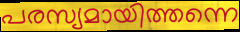
പരസ്യമായിത്തന്നെ